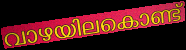
വാഴയിലകൊണ്ട്